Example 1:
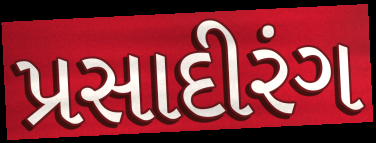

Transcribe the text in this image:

પ્રસાદીરંગ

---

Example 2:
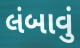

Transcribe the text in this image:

લંબાવું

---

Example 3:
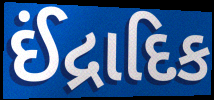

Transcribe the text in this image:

ઈંદ્રાદિક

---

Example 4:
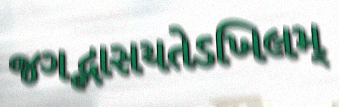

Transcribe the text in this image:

જગદ્ભાસયતેઽખિલમ્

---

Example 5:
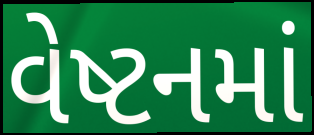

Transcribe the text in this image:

વેષ્ટનમાં